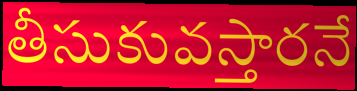
తీసుకువస్తారనే